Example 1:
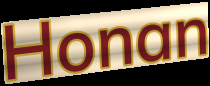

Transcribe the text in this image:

Honan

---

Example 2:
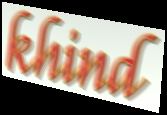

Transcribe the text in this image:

khind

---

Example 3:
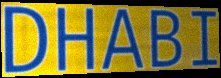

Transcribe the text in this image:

DHABI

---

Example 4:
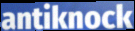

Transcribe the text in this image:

antiknock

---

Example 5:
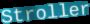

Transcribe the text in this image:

Stroller